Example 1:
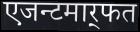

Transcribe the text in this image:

एजन्टमार्फत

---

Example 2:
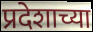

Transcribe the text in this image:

प्रदेशाच्या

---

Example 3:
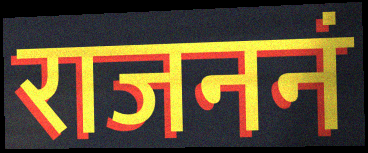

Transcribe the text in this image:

राजननं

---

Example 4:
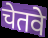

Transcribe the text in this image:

चेतवे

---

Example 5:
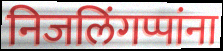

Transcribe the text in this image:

निजलिंगप्पांना